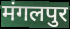
मंगलपुर